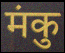
मंकु